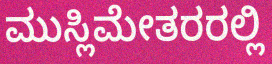
ಮುಸ್ಲಿಮೇತರರಲ್ಲಿ